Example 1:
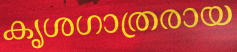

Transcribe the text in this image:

കൃശഗാത്രരായ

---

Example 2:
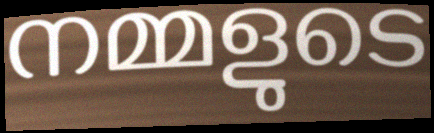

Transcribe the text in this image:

നമ്മളുടെ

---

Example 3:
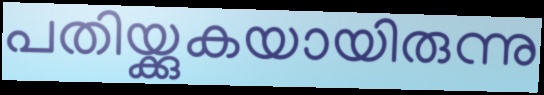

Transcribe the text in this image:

പതിയ്ക്കുകയായിരുന്നു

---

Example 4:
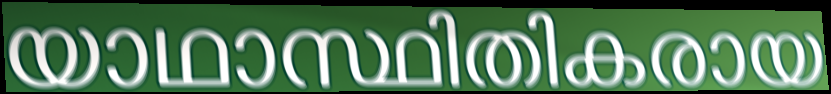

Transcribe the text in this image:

യാഥാസ്ഥിതികരായ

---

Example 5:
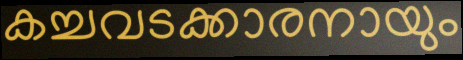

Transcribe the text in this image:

കച്ചവടക്കാരനായും